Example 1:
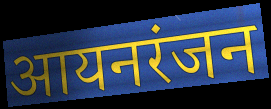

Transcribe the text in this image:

आयनरंजन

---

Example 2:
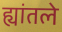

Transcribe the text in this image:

ह्यांतले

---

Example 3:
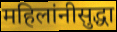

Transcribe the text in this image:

महिलांनीसुद्धा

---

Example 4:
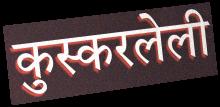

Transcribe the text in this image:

कुस्करलेली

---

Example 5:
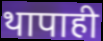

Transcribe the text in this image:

थापाही